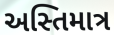
અસ્તિમાત્ર